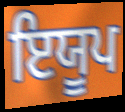
ਇਯੂਪ